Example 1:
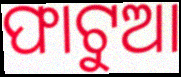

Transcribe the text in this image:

ଫାଟୁଆ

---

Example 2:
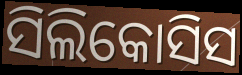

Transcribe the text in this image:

ସିଲିକୋସିସ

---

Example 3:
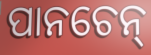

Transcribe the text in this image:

ପାନଚେନ୍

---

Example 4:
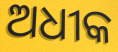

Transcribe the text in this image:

ଅଧୀକ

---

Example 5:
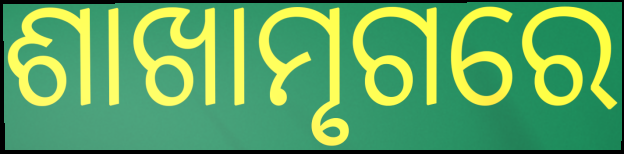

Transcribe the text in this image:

ଶାଖାମୃଗରେ